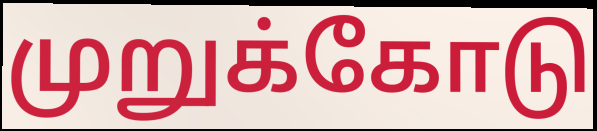
முறுக்கோடு